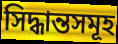
সিদ্ধান্তসমূহ